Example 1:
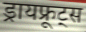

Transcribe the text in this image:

ड्रायफ्रूट्स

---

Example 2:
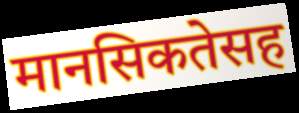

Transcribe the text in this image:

मानसिकतेसह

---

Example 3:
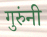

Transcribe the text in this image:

गुरुंनी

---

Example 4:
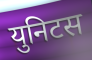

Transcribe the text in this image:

युनिटस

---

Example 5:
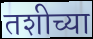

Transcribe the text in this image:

तशीच्या